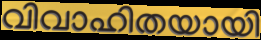
വിവാഹിതയായി